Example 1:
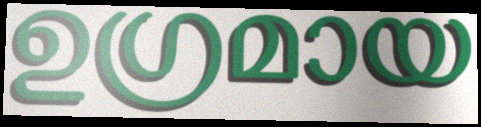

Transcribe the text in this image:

ഉഗ്രമായ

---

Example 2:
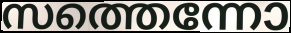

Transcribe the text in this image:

സത്തെന്നോ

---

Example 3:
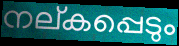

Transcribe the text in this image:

നല്കപ്പെടും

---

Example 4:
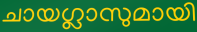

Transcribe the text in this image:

ചായഗ്ലാസുമായി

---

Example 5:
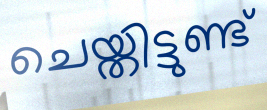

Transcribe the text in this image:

ചെയ്തിട്ടുണ്ട്